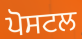
ਪੋਸਟਲ